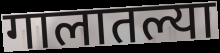
गालातल्या